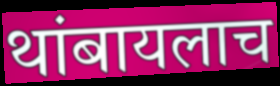
थांबायलाच